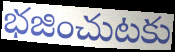
భజించుటకు